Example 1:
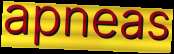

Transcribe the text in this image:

apneas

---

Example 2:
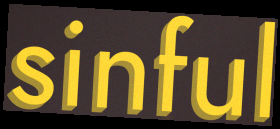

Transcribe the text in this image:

sinful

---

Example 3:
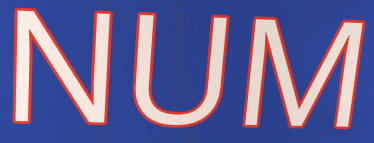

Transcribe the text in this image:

NUM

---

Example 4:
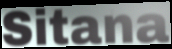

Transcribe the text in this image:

Sitana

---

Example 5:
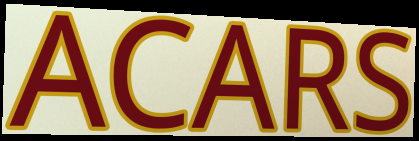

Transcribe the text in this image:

ACARS